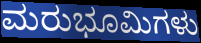
ಮರುಭೂಮಿಗಳು